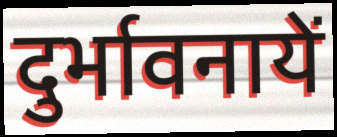
दुर्भावनायें